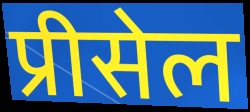
प्रीसेल